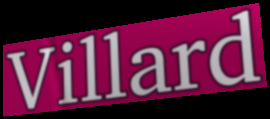
Villard